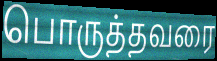
பொருத்தவரை